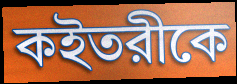
কইতরীকে